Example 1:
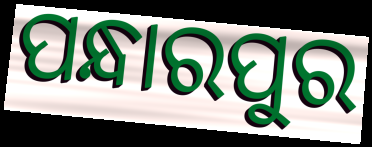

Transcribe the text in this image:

ପନ୍ଧାରପୁର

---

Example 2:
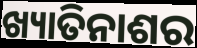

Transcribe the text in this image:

ଖ୍ୟାତିନାଶର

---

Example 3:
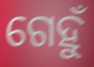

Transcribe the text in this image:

ଗେହୁଁ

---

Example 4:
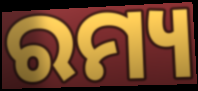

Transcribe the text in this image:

ରମ୍ୟ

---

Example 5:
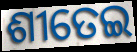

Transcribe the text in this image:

ଶୀତେଇ